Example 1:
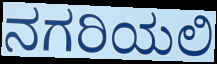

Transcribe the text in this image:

ನಗರಿಯಲಿ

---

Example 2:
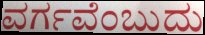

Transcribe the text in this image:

ವರ್ಗವೆಂಬುದು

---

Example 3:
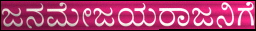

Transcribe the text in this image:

ಜನಮೇಜಯರಾಜನಿಗೆ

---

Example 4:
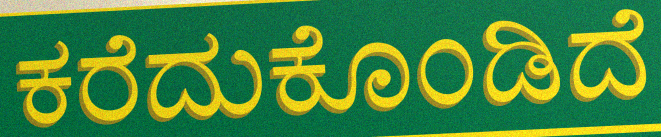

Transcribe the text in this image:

ಕರೆದುಕೊಂಡಿದೆ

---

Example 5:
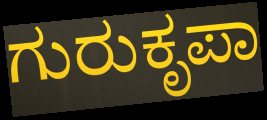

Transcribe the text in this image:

ಗುರುಕೃಪಾ